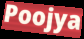
Poojya